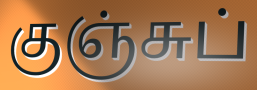
குஞ்சுப்